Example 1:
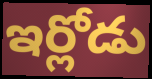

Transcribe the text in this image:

ఇర్లోడు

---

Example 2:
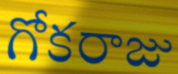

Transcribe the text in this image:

గోకరాజు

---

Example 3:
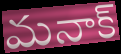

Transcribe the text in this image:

మనాక్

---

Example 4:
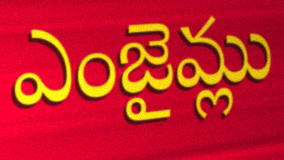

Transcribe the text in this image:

ఎంజైమ్లు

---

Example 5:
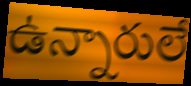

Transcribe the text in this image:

ఉన్నారులే